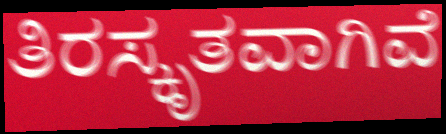
ತಿರಸ್ಕೃತವಾಗಿವೆ